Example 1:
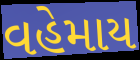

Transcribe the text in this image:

વહેમાય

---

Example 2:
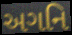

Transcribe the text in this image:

અગનિ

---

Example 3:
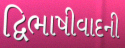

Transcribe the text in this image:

દ્વિભાષીવાદની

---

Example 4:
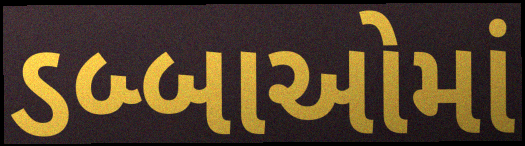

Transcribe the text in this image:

ડબ્બાઓમાં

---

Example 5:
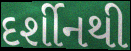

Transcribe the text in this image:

દર્શીનથી